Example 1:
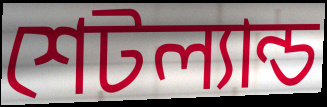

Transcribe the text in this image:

শেটল্যান্ড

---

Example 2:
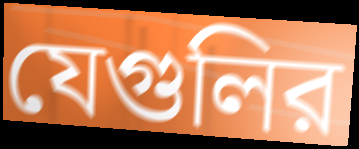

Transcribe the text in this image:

যেগুলির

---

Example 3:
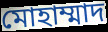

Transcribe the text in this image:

মোহাম্মাদ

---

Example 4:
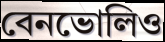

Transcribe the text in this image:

বেনভোলিও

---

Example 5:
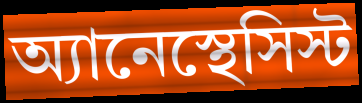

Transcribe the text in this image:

অ্যানেস্থেসিস্ট